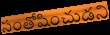
సంతోషించుడని